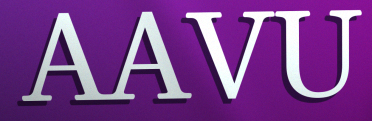
AAVU